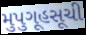
મુપુગૂહસૂચી